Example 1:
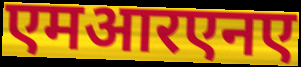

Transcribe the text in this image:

एमआरएनए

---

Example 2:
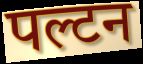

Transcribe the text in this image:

पल्टन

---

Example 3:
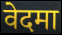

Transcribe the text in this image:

वेदमा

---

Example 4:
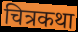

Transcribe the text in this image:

चित्रकथा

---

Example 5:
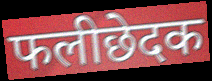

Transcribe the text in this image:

फलीछेदक